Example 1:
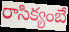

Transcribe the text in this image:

రాసిక్యంబే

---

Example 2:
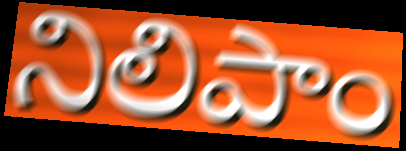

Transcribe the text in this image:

నిలిపాం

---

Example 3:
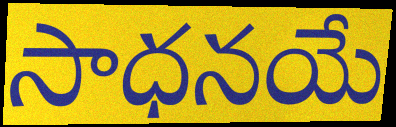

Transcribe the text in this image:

సాధనయే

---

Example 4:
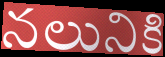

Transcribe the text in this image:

నలునికి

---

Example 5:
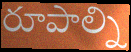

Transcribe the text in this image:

రూపాల్ని